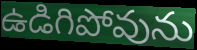
ఉడిగిపోవును